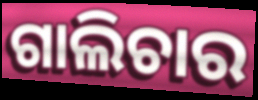
ଗାଲିଚାର